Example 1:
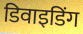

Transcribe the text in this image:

डिवाइडिंग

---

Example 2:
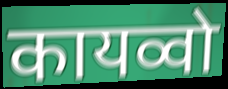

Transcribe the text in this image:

कायव्वो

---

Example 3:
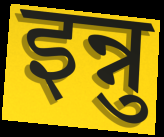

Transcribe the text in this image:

इन्नु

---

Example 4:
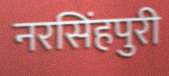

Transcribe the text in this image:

नरसिंहपुरी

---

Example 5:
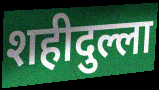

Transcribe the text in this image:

शहीदुल्ला